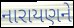
નારાયણને